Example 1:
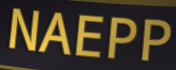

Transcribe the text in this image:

NAEPP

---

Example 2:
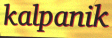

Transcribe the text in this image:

kalpanik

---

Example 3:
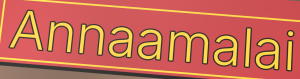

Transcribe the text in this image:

Annaamalai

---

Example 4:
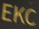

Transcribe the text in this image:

EKC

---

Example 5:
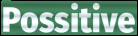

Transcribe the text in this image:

Possitive